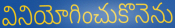
వినియోగించుకొనెను